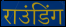
राउंडिंग